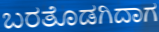
ಬರತೊಡಗಿದಾಗ